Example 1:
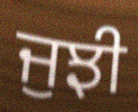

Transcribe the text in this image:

ਜੁਝੀ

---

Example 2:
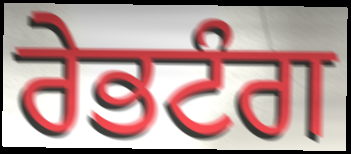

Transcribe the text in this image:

ਰੇਭਟੰਗ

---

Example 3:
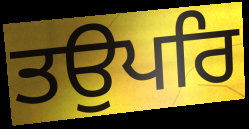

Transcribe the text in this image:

ਤਉਪਰਿ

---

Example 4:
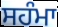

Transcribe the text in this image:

ਸਹੰਮਾ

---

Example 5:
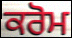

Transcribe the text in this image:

ਕਰੋਮ